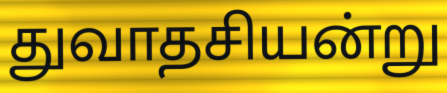
துவாதசியன்று